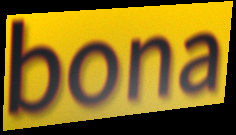
bona